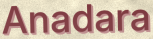
Anadara